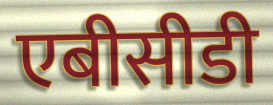
एबीसीडी